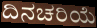
ದಿನಚರಿಯೆ